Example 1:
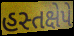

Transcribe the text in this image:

હસ્તક્ષેપે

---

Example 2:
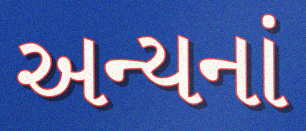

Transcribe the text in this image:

અન્યનાં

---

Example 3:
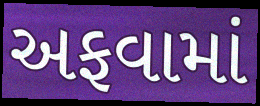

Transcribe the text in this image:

અફવામાં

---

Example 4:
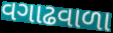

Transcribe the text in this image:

વગાઢવાળા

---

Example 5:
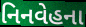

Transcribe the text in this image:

નિનવેહના